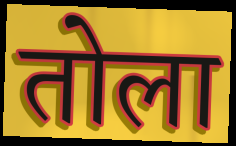
तोला